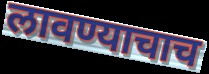
लावण्याचाच